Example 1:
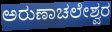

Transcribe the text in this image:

ಅರುಣಾಚಲೇಶ್ವರ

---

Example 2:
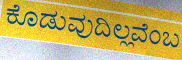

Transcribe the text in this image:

ಕೊಡುವುದಿಲ್ಲವೆಂಬ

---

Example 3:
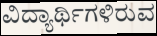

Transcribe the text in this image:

ವಿದ್ಯಾರ್ಥಿಗಳಿರುವ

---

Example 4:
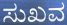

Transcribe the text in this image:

ಸುಖವ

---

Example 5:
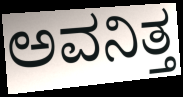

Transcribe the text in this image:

ಅವನಿತ್ತ